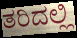
ತರಿದಲ್ಲಿ